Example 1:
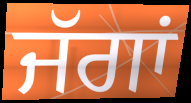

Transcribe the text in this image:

ਜੱਗਾਂ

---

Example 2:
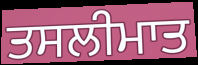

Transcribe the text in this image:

ਤਸਲੀਮਾਤ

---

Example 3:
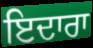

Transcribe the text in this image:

ਇਦਾਰਾ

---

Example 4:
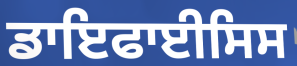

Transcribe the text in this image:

ਡਾਇਫਾਈਸਿਸ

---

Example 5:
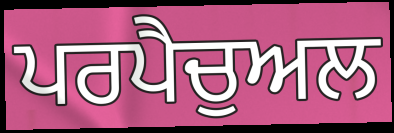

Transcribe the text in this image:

ਪਰਪੈਚੁਅਲ